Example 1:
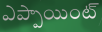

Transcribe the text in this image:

ఎప్పాయింట్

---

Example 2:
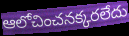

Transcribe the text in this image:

ఆలోచించనక్కరలేదు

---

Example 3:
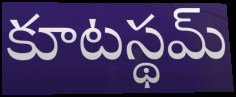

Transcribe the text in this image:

కూటస్థమ్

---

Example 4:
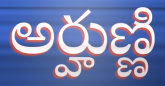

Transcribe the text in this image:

అర్హుణ్ణి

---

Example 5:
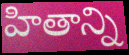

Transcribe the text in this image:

హితాన్ని